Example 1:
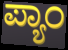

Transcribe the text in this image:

ಪ್ಯಾಂ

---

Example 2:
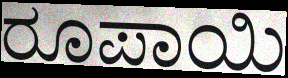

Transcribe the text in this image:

ರೂಪಾಯಿ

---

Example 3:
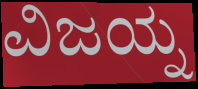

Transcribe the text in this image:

ವಿಜಯ್ನ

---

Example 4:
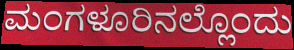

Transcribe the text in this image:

ಮಂಗಳೂರಿನಲ್ಲೊಂದು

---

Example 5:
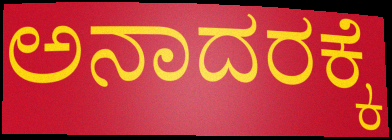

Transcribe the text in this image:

ಅನಾದರಕ್ಕೆ